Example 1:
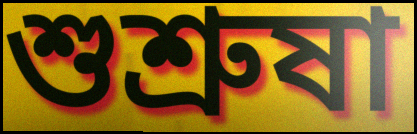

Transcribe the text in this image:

শুশ্ৰুষা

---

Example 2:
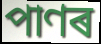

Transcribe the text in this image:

পাণৰ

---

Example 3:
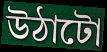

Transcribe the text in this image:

উঠাটো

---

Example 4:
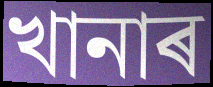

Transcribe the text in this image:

খানাৰ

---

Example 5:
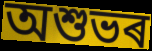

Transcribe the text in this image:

অশুভৰ